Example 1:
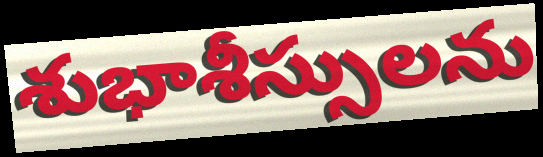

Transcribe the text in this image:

శుభాశీస్సులను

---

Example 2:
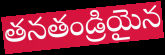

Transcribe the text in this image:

తనతండ్రియైన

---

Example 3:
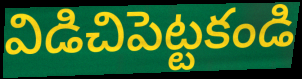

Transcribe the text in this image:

విడిచిపెట్టకండి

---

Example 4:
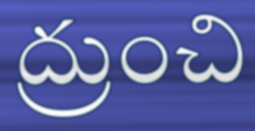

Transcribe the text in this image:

ద్రుంచి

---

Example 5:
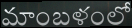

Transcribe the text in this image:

మాంబళంలో